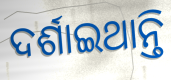
ଦର୍ଶାଇଥାନ୍ତି